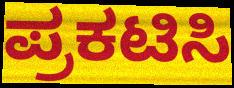
ಪ್ರಕಟಿಸಿ